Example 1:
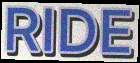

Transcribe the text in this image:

RIDE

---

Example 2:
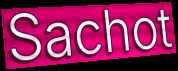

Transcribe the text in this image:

Sachot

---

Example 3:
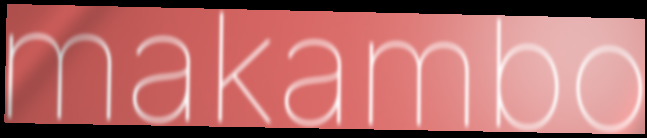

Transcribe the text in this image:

makambo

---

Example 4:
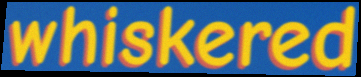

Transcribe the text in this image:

whiskered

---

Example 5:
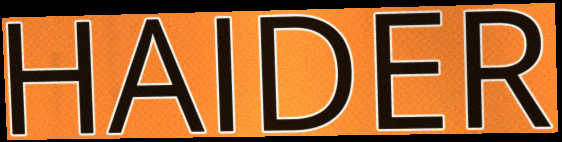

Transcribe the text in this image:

HAIDER